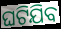
ଘଟିଯିବ